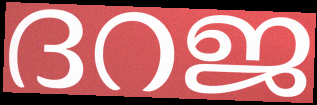
ദറജ